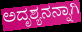
ಅದೃಶ್ಯನನ್ನಾಗಿ